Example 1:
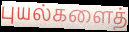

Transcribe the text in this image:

புயல்களைத்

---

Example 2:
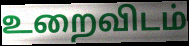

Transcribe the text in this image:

உறைவிடம்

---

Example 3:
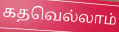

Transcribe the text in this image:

கதவெல்லாம்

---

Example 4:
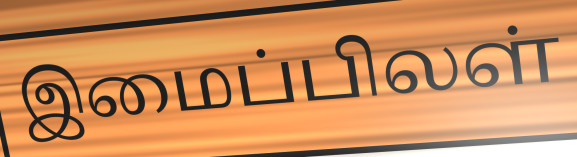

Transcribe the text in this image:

இமைப்பிலள்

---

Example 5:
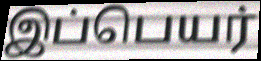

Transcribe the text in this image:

இப்பெயர்